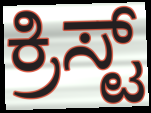
ಕ್ರಿಸ್ಟ್